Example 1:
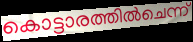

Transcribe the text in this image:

കൊട്ടാരത്തിൽചെന്ന്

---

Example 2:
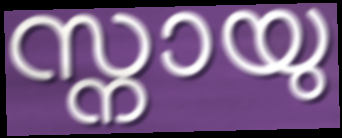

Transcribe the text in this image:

സ്നായു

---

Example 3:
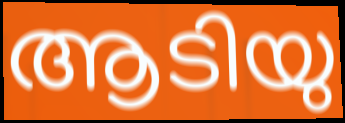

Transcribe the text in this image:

ആടിയു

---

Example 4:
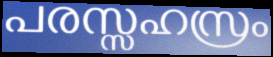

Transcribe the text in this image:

പരസ്സഹസ്രം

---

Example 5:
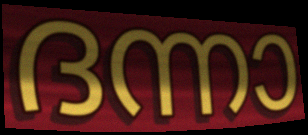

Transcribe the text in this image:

ദന്നാ